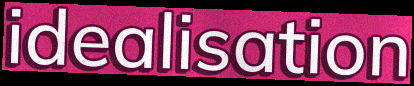
idealisation